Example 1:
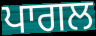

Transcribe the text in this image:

ਪਾਗਲ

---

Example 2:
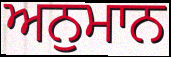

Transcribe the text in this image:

ਅਨੁਮਾਨ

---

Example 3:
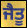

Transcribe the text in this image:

ਜੈਤੂ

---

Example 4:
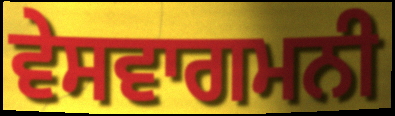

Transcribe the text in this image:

ਵੇਸਵਾਗਮਨੀ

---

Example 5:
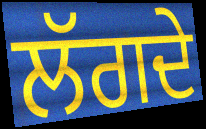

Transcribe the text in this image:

ਲੱਗਦੇ